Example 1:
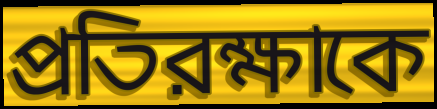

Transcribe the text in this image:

প্রতিরক্ষাকে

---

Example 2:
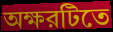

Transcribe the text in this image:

অক্ষরটিতে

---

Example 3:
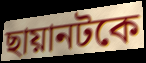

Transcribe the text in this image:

ছায়ানটকে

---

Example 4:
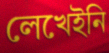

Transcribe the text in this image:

লেখেইনি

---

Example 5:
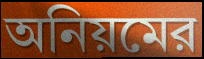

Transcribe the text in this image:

অনিয়মের